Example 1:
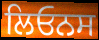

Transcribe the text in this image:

ਲਿਓਨਸ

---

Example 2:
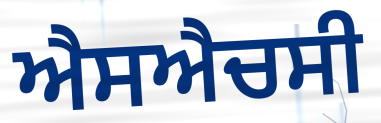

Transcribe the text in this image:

ਐਸਐਚਸੀ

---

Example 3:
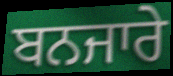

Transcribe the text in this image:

ਬਨਜਾਰੇ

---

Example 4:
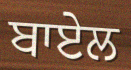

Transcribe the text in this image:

ਬਾਏਲ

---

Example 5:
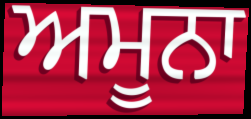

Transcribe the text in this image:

ਅਮੂਨਾ